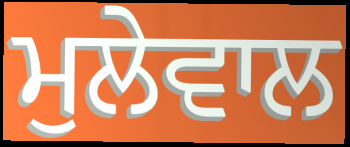
ਮੁਲੇਵਾਲ